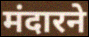
मंदारने